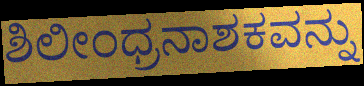
ಶಿಲೀಂಧ್ರನಾಶಕವನ್ನು